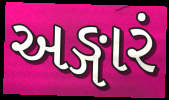
અઙ્ગારં